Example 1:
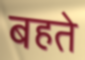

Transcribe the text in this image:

बहते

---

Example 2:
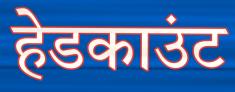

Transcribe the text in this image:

हेडकाउंट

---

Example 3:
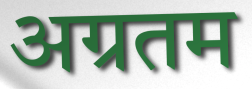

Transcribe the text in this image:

अग्रतम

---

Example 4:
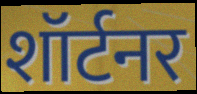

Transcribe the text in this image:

शॉर्टनर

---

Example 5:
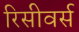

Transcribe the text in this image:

रिसीवर्स